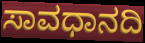
ಸಾವಧಾನದಿ